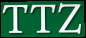
TTZ